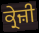
ਕ੍ਰੇਜ਼ੀ